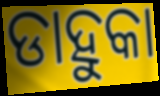
ଡାହୁକା